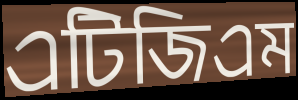
এটিজিএম